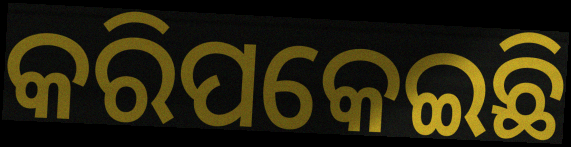
କରିପକେଇଛି